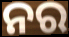
ନର